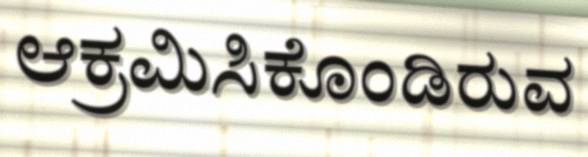
ಆಕ್ರಮಿಸಿಕೊಂಡಿರುವ